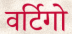
वर्टिगो